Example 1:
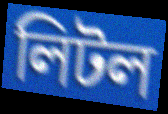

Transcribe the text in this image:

লিটল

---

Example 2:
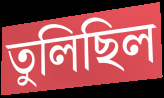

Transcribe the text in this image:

তুলিছিল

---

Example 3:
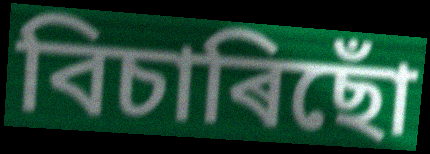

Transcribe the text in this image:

বিচাৰিছোঁ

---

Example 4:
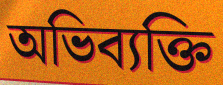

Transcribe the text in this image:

অভিব্যক্তি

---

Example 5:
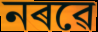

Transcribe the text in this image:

নৰৱে